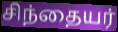
சிந்தையர்